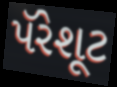
પૅરેશૂટ